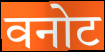
वनोट